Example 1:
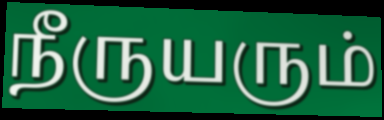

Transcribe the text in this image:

நீருயரும்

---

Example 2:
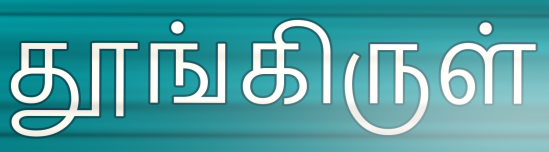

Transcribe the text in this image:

தூங்கிருள்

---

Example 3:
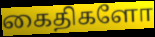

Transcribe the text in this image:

கைதிகளோ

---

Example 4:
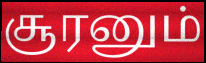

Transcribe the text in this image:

சூரனும்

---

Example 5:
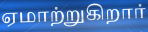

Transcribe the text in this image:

ஏமாற்றுகிறார்